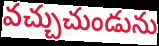
వచ్చుచుండును